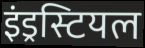
इंड्रस्टियल